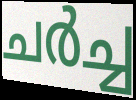
ചർച്ച